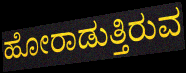
ಹೋರಾಡುತ್ತಿರುವ